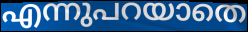
എന്നുപറയാതെ